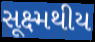
સૂક્ષ્મથીય